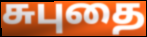
சுபுதை